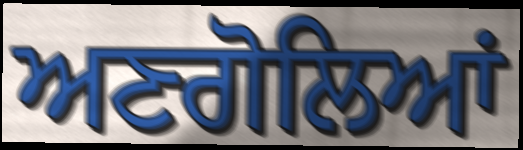
ਅਣਗੋਲਿਆਂ